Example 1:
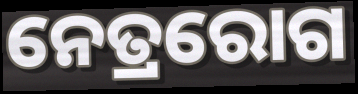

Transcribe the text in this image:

ନେତ୍ରରୋଗ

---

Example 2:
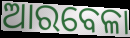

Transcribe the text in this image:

ଆରବେଳା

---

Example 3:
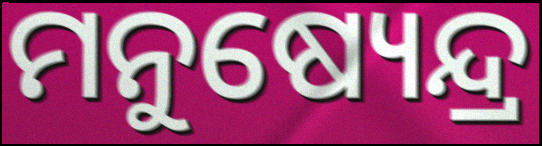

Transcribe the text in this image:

ମନୁଷ୍ୟେନ୍ଦ୍ର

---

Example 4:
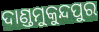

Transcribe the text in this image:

ଦାଣ୍ଡମୁକୁନ୍ଦପୁର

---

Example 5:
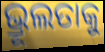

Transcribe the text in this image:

ଭ୍ରୂଲତାକୁ